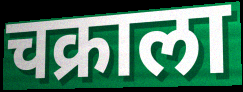
चक्राला